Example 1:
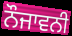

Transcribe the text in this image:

ਨੌਜਾਵਨੀ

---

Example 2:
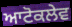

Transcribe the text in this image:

ਆਟੋਕਲੇਵ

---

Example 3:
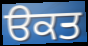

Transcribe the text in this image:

ੳਕਤ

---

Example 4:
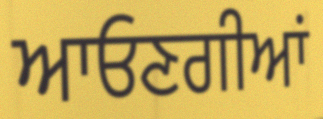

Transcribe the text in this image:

ਆਓਣਗੀਆਂ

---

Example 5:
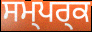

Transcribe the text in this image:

ਸਮ੍ਪਰ੍ਕ